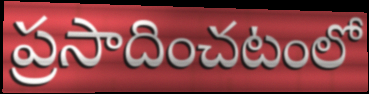
ప్రసాదించటంలో